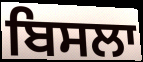
ਬਿਸਲਾ